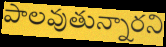
పాలవుతున్నారని